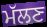
ਮੱਲਣ